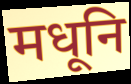
मधूनि